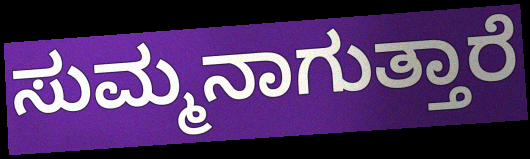
ಸುಮ್ಮನಾಗುತ್ತಾರೆ